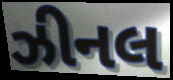
ઝીનલ